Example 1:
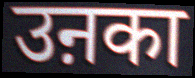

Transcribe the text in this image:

उऩका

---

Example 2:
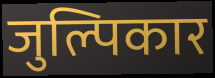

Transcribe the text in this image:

जुल्पिकार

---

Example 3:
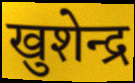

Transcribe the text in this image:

खुशेन्द्र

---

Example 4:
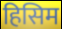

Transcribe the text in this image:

हिसिम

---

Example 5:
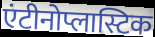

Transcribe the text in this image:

एंटीनोप्लास्टिक